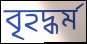
বৃহদ্ধৰ্ম